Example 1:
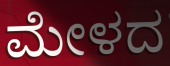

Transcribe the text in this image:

ಮೇಳದ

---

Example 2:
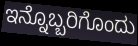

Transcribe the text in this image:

ಇನ್ನೊಬ್ಬರಿಗೊಂದು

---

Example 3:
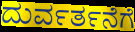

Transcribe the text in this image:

ದುರ್ವರ್ತನೆಗೆ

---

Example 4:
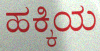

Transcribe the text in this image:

ಹಕ್ಕಿಯ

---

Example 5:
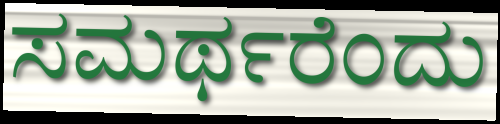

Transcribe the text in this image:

ಸಮರ್ಥರೆಂದು